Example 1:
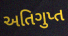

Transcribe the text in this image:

અતિગુપ્ત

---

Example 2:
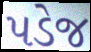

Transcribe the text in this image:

પડેજ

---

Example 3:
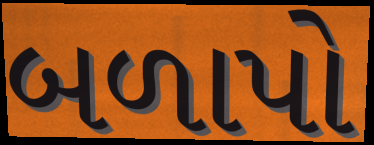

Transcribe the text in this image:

બળાપો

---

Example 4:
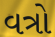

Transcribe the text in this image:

વત્રો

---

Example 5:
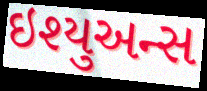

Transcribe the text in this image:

ઇશ્યુઅન્સ